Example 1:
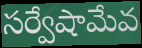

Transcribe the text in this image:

సర్వేషామేవ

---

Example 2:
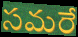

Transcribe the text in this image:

సమరే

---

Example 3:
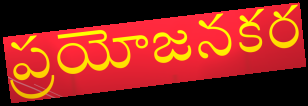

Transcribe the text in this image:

ప్రయోజనకర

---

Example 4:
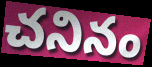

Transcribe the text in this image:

చనినం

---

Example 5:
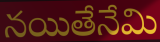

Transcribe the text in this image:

నయితేనేమి